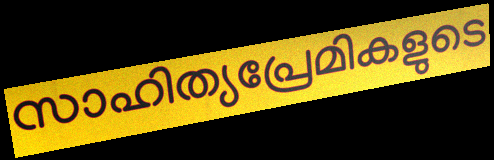
സാഹിത്യപ്രേമികളുടെ